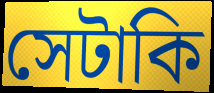
সেটাকি